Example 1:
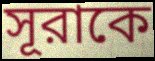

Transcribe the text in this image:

সূরাকে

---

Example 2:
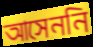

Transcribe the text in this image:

আসেননি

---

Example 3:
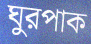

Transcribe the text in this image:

ঘুরপাক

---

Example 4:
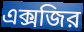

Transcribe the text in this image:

এক্সজির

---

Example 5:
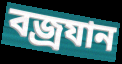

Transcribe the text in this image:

বজ্রযান